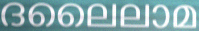
ദലൈലാമ